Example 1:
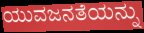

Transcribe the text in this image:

ಯುವಜನತೆಯನ್ನು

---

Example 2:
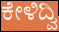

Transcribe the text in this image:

ಕೇಳಿದ್ವಿ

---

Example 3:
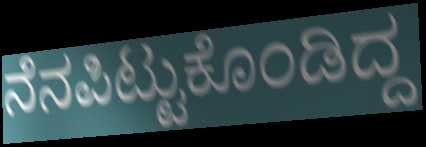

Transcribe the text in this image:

ನೆನಪಿಟ್ಟುಕೊಂಡಿದ್ದ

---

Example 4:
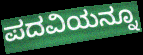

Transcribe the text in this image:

ಪದವಿಯನ್ನೂ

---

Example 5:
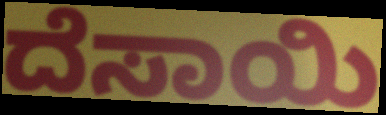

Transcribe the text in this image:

ದೆಸಾಯಿ